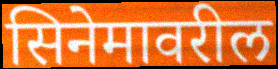
सिनेमावरील